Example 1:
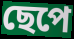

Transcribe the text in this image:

ছেপে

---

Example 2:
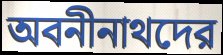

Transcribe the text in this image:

অবনীনাথদের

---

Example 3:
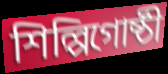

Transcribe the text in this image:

শিল্পিগোষ্ঠী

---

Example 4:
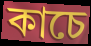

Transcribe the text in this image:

কাচে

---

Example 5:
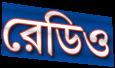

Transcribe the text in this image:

রেডিও